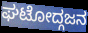
ಘಟೋದ್ಗಜನ